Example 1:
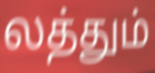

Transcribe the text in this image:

லத்தும்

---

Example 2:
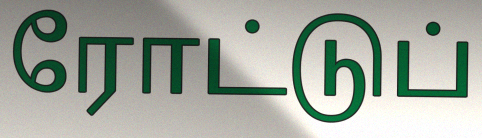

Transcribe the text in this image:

ரோட்டுப்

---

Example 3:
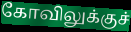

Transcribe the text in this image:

கோவிலுக்குச்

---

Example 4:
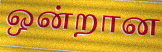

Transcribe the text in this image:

ஒன்றான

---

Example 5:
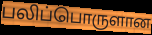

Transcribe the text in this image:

பலிப்பொருளான